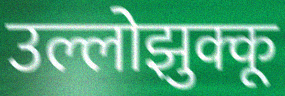
उल्लोझुक्कू